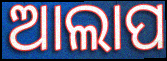
ଆଲାପ